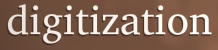
digitization